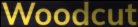
Woodcut